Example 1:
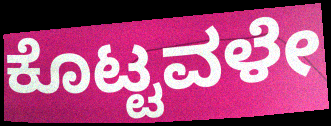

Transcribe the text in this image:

ಕೊಟ್ಟವಳೇ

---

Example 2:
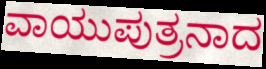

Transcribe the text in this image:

ವಾಯುಪುತ್ರನಾದ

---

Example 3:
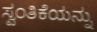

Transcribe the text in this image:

ಸ್ವಂತಿಕೆಯನ್ನು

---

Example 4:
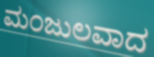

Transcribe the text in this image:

ಮಂಜುಲವಾದ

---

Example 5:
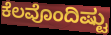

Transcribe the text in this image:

ಕೆಲವೊಂದಿಷ್ಟು